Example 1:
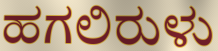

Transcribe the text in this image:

ಹಗಲಿರುಳು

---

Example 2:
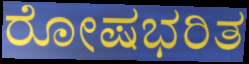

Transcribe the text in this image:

ರೋಷಭರಿತ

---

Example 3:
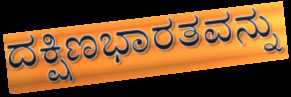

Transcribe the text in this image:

ದಕ್ಷಿಣಭಾರತವನ್ನು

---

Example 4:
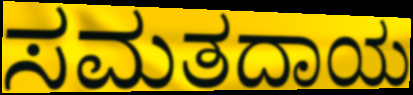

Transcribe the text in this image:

ಸಮತದಾಯ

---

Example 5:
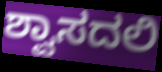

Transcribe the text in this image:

ಶ್ವಾಸದಲಿ